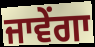
ਜਾਵੇਂਗਾ